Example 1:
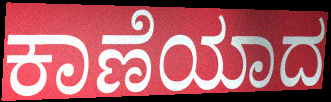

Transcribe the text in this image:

ಕಾಣೆಯಾದ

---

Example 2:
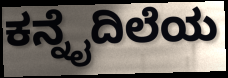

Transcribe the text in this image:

ಕನ್ನೈದಿಲೆಯ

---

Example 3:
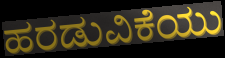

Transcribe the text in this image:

ಹರಡುವಿಕೆಯು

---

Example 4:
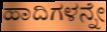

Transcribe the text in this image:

ಹಾದಿಗಳನ್ನೇ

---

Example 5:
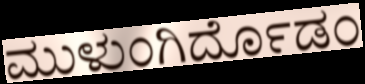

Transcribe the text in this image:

ಮುಳುಂಗಿರ್ದೊಡಂ